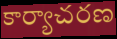
కార్యాచరణ